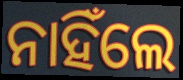
ନାହିଁଲେ